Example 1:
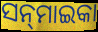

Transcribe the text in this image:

ସନ୍‌ମାଇକା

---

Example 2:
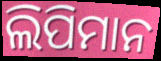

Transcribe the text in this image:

ଲିପିମାନ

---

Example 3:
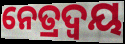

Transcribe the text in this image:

ନେତ୍ରଦ୍ୱୟ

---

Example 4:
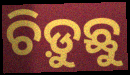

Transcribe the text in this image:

ଚିଡ଼ୁଛୁ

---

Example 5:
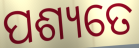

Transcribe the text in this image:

ପଶ୍ୟତେ